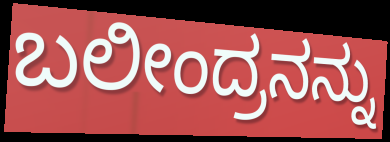
ಬಲೀಂದ್ರನನ್ನು